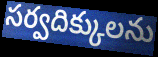
సర్వదిక్కులను